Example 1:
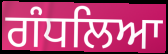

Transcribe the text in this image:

ਗੰਧਲਿਆ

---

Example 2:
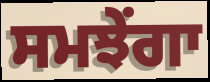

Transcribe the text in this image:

ਸਮਝੇਂਗਾ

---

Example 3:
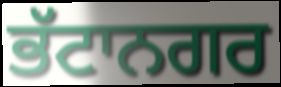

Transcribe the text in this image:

ਭੱਟਾਨਗਰ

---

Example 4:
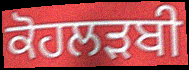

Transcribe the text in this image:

ਕੋਹਲੜਬੀ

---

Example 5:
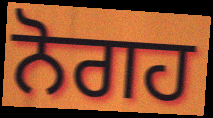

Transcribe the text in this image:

ਨੋਗਹ